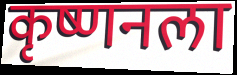
कृष्णनला